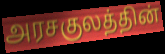
அரசகுலத்தின்